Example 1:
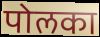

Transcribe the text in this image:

पोलका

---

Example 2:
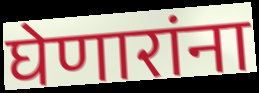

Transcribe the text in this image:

घेणारांना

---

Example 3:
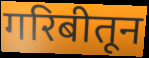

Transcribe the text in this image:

गरिबीतून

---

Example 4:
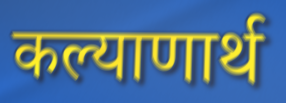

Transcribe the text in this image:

कल्याणार्थ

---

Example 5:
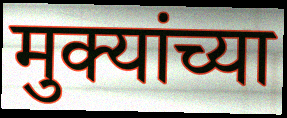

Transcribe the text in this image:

मुक्यांच्या